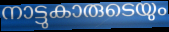
നാട്ടുകാരുടെയും